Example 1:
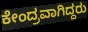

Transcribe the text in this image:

ಕೇಂದ್ರವಾಗಿದ್ದರು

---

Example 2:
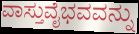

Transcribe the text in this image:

ವಾಸ್ತುವೈಭವವನ್ನು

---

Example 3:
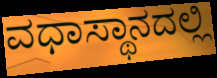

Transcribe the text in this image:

ವಧಾಸ್ಥಾನದಲ್ಲಿ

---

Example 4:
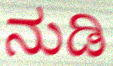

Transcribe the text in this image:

ನುಡಿ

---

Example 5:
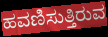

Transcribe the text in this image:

ಹವಣಿಸುತ್ತಿರುವ